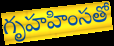
గృహహింసతో